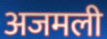
अजमली